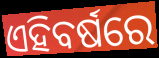
ଏହିବର୍ଷରେ